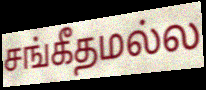
சங்கீதமல்ல